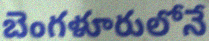
బెంగళూరులోనే